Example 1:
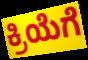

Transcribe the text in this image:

ಕ್ರಿಯೆಗೆ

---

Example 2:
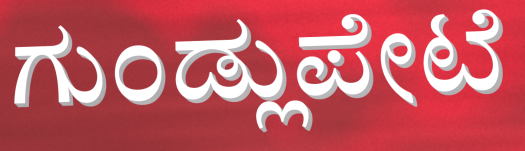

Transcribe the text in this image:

ಗುಂಡ್ಲುಪೇಟೆ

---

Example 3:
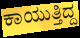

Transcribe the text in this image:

ಕಾಯುತ್ತಿದ್ದ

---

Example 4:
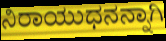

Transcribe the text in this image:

ನಿರಾಯುಧನನ್ನಾಗಿ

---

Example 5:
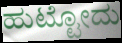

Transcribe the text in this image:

ಹುಟ್ಟೋದು